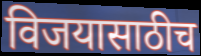
विजयासाठीच